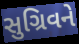
સુગ્રિવને